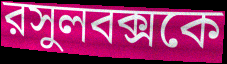
রসুলবক্সকে